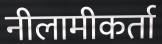
नीलामीकर्ता